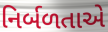
નિર્બળતાએ